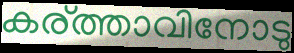
കര്ത്താവിനോടു